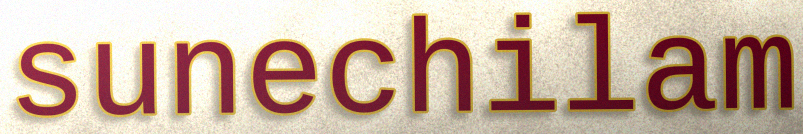
sunechilam